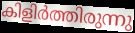
കിളിർത്തിരുന്നു